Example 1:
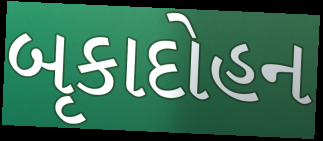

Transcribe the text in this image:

બૃકાદોહન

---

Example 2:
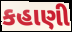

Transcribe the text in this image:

કહાણી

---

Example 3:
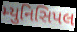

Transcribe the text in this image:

મ્યુનિસિપલ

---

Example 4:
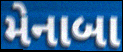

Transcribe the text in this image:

મેનાબા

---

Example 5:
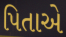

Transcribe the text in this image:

પિતાએ